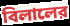
বিলালের